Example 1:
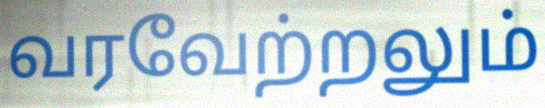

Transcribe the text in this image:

வரவேற்றலும்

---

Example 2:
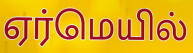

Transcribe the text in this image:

ஏர்மெயில்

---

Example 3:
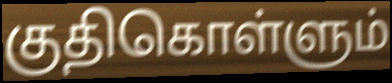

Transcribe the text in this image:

குதிகொள்ளும்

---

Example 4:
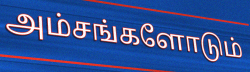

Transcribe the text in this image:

அம்சங்களோடும்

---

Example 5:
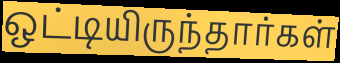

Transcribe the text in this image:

ஒட்டியிருந்தார்கள்